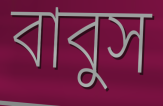
বাবুস